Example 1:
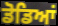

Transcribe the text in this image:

ਡੋਡਿਆਂ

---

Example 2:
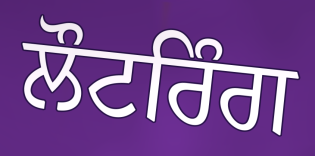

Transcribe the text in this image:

ਲੌਟਰਿੰਗ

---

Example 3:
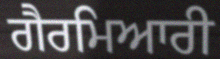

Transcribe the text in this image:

ਗੈਰਮਿਆਰੀ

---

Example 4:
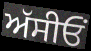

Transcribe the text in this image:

ਅੱਸੀਓਂ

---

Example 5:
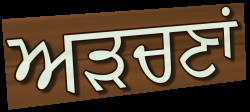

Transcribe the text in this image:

ਅੜਚਣਾਂ